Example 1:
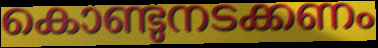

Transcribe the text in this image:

കൊണ്ടുനടക്കണം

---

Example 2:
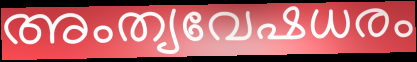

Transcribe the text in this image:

അംത്യവേഷധരം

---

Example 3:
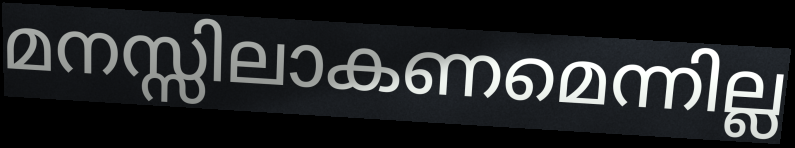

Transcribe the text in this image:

മനസ്സിലാകണമെന്നില്ല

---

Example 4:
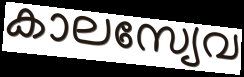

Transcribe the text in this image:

കാലസ്യേവ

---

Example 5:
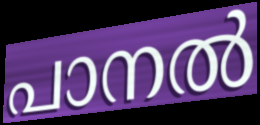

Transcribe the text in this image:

പാനൽ